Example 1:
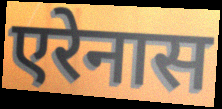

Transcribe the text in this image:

एरेनास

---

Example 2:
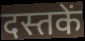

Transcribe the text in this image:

दस्तकें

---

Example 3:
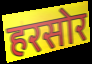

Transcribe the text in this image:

हरसोर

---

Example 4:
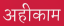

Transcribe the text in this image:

अहीकाम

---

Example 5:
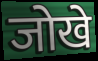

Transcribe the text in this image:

जोखे